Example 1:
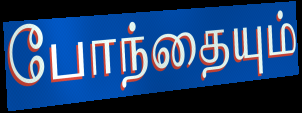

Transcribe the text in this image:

போந்தையும்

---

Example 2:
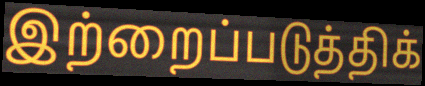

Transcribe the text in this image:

இற்றைப்படுத்திக்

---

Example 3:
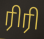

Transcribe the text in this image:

ரிரி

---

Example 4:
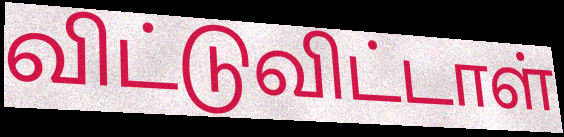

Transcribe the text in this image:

விட்டுவிட்டாள்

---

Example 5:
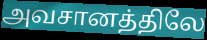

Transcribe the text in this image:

அவசானத்திலே